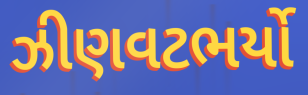
ઝીણવટભર્યો